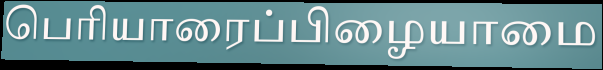
பெரியாரைப்பிழையாமை